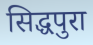
सिद्धपुरा